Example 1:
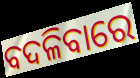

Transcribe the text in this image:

ବଦଳିବାରେ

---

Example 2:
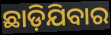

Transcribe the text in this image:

ଛାଡ଼ିଯିବାର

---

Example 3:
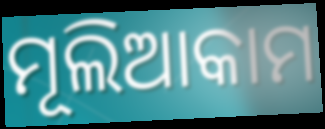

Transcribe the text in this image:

ମୂଲିଆକାମ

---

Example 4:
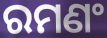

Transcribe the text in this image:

ରମଣଂ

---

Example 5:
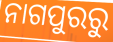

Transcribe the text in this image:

ନାଗପୁରରୁ